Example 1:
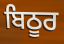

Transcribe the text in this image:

ਬਿਠੂਰ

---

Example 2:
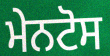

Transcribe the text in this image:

ਮੇਨਟੋਸ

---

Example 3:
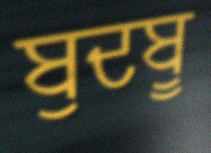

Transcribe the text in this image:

ਬੁਦਬੂ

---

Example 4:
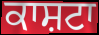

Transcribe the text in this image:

ਕਾਸ਼ਟਾ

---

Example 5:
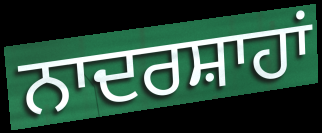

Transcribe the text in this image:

ਨਾਦਰਸ਼ਾਹਾਂ